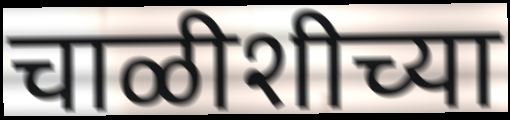
चाळीशीच्या